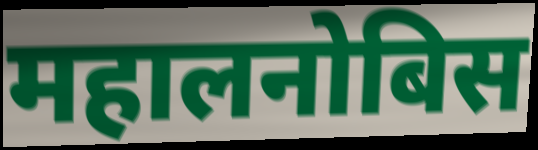
महालनोबिस